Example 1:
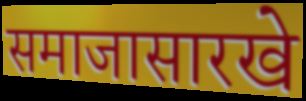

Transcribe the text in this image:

समाजासारखे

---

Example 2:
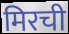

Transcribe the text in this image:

मिरची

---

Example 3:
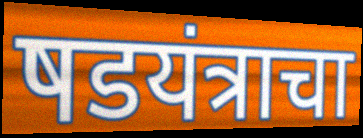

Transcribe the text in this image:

षडयंत्राचा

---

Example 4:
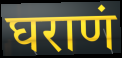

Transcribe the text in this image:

घराणं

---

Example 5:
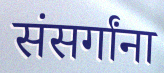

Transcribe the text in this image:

संसर्गांना